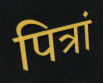
पित्रां